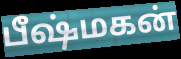
பீஷ்மகன்